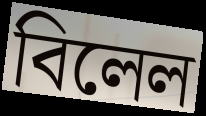
বিলেল